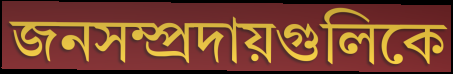
জনসম্প্রদায়গুলিকে